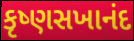
કૃષ્ણસખાનંદ